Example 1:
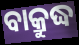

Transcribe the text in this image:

ବାକ୍ରୁଦ୍ଧ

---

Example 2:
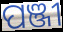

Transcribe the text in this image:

ପଞ୍ଜୀ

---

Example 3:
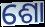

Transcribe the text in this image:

ଶୋ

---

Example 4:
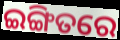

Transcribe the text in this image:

ଇଙ୍ଗିତରେ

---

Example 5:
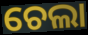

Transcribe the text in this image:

ଚେଲା